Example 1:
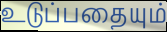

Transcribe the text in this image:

உடுப்பதையும்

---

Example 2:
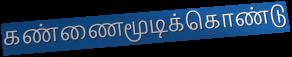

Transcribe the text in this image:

கண்ணைமூடிக்கொண்டு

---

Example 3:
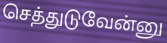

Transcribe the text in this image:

செத்துடுவேன்னு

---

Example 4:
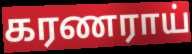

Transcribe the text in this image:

கரணராய்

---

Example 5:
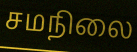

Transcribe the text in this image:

சமநிலை